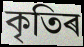
কৃতিৰ